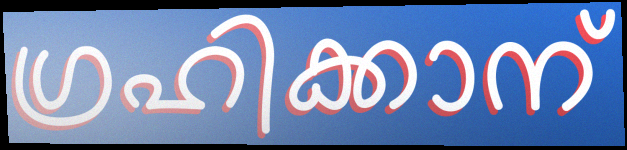
ഗ്രഹിക്കാന്